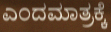
ಎಂದಮಾತ್ರಕ್ಕೆ